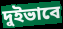
দুইভাবে